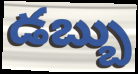
డబ్బు